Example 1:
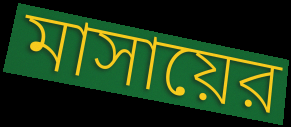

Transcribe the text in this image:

মাসায়ের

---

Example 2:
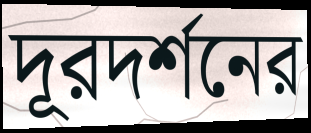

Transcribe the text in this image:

দূরদর্শনের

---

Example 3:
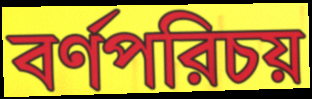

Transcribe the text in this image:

বর্ণপরিচয়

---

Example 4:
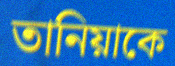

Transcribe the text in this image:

তানিয়াকে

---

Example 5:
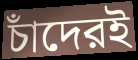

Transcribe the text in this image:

চাঁদেরই